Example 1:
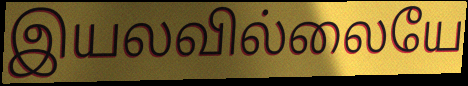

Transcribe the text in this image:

இயலவில்லையே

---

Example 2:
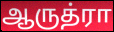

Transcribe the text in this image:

ஆருத்ரா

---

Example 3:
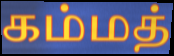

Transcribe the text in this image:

கம்மத்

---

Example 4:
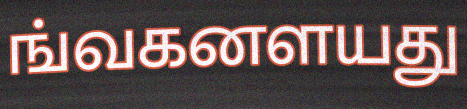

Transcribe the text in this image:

ங்வகனளயது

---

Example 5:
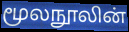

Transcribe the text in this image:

மூலநூலின்